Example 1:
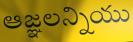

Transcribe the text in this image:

ఆజ్ఞలన్నియు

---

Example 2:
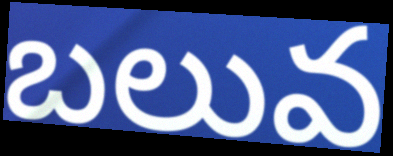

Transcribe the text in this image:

బలువ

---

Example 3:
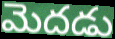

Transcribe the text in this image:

మెదడు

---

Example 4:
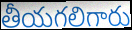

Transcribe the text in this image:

తీయగలిగారు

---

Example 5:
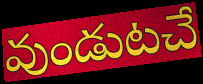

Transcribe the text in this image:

వుండుటచే